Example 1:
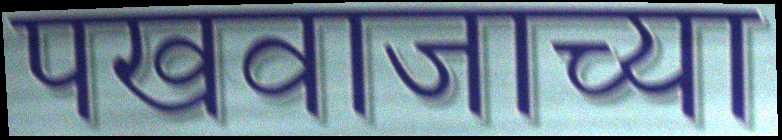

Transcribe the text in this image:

पखवाजाच्या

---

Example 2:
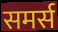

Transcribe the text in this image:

समर्स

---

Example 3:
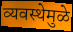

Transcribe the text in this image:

व्यवस्थेमुळे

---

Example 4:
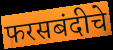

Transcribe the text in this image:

फरसबंदीचे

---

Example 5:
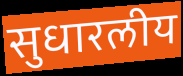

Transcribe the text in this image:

सुधारलीय